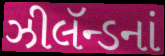
ઝીલૅન્ડનાં